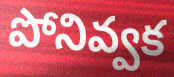
పోనివ్వక